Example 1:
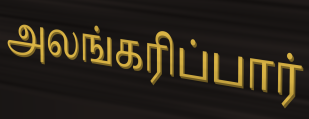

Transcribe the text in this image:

அலங்கரிப்பார்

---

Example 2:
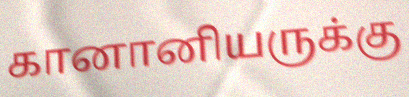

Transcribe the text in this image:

கானானியருக்கு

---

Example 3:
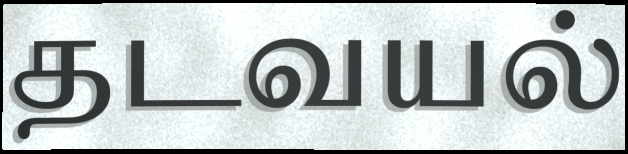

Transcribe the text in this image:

தடவயல்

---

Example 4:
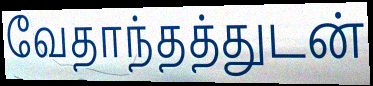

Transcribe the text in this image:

வேதாந்தத்துடன்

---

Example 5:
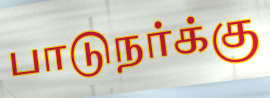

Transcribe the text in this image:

பாடுநர்க்கு